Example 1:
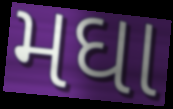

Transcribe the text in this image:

મઘા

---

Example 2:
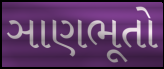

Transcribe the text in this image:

ઞાણભૂતો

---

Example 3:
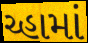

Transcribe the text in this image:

ચ્હામાં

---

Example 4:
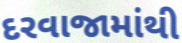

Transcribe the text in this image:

દરવાજામાંથી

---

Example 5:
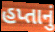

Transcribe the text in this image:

હપ્તાનું